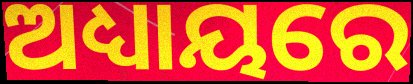
ଅଧ୍ୟାୟରେ